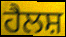
ਹੈਲਸ਼